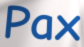
Pax